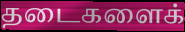
தடைகளைக்